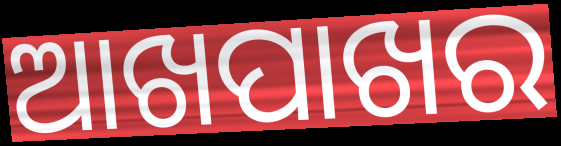
ଆଖପାଖର